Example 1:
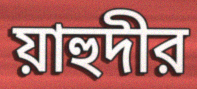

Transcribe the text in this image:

য়াহুদীর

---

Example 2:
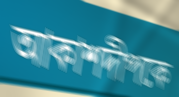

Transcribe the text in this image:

আকাশদীপকে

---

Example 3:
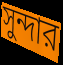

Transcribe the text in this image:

সুন্দার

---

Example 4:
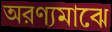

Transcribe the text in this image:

অরণ্যমাঝে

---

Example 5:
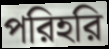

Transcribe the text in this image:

পরিহরি